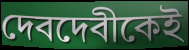
দেবদেবীকেই